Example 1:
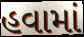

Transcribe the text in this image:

હવામાં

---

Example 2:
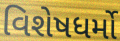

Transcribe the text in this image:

વિશેષધર્મો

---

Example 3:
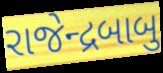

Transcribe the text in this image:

રાજેન્દ્રબાબુ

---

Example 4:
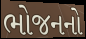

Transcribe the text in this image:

ભોજનનો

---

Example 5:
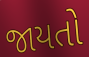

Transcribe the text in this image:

જાયતો